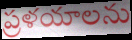
ప్రళయాలను